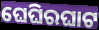
ଘେଘିରଘାଟ